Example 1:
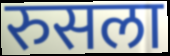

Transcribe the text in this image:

रुसला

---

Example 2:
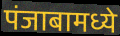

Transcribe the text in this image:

पंजाबामध्ये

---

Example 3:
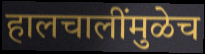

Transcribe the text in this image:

हालचालींमुळेच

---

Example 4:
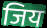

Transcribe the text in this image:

जिय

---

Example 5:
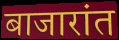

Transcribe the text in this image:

बाजारांत